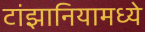
टांझानियामध्ये